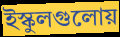
ইস্কুলগুলোয়